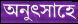
অনুৎসাহে